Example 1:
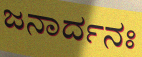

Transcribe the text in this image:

ಜನಾರ್ದನಃ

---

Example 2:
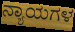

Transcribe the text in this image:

ನ್ಯಾಯಗಳ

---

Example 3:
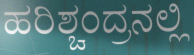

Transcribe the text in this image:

ಹರಿಶ್ಚಂದ್ರನಲ್ಲಿ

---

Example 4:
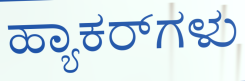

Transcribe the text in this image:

ಹ್ಯಾಕರ್‌ಗಳು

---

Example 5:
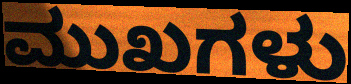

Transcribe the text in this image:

ಮುಖಗಳು